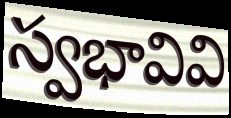
స్వభావివి